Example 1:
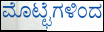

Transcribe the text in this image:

ಮೊಟ್ಟೆಗಳಿಂದ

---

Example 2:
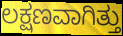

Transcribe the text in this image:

ಲಕ್ಷಣವಾಗಿತ್ತು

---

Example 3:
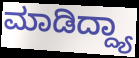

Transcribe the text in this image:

ಮಾಡಿದ್ದ್ಯಾ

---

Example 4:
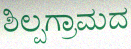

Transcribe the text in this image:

ಶಿಲ್ಪಗ್ರಾಮದ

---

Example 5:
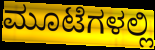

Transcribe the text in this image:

ಮೂಟೆಗಳಲ್ಲಿ